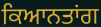
ਕਿਆਨਤਾਂਗ